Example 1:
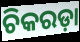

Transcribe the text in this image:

ଚିକରଡ଼ା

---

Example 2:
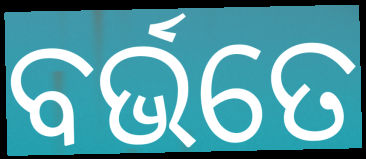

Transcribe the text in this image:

ବର୍ଭତେ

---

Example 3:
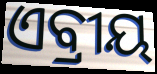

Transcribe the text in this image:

ଏବ୍ରୀୟ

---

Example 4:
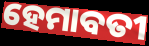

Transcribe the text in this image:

ହେମାବତୀ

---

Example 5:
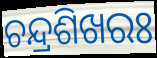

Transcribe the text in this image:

ଚନ୍ଦ୍ରଶିଖରଃ